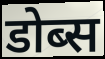
डोब्स